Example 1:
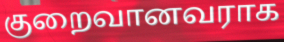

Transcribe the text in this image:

குறைவானவராக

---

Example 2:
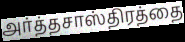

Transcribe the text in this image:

அர்த்தசாஸ்திரத்தை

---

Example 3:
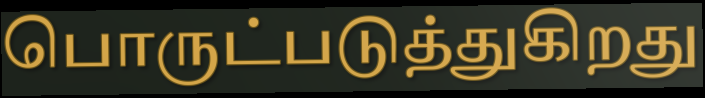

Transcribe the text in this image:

பொருட்படுத்துகிறது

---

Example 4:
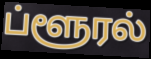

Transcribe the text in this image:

ப்ளூரல்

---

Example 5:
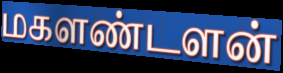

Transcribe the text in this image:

மகளண்டளன்